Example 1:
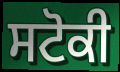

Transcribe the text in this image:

ਸਟੋਕੀ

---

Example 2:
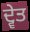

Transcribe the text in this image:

ਦ੍ਵੇਤ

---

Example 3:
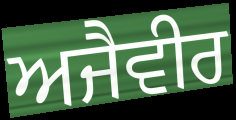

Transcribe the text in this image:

ਅਜੈਵੀਰ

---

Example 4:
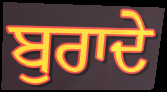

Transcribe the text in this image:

ਬੁਰਾਦੇ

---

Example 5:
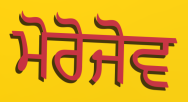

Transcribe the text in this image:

ਮੋਰੋਜੋਵ